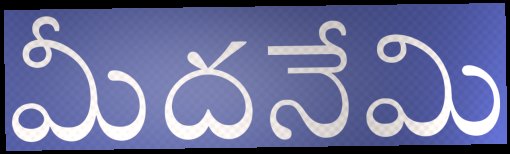
మీదనేమి